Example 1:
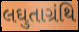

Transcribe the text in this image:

લઘુતાગ્રંથિ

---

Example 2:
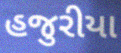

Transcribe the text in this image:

હજુરીયા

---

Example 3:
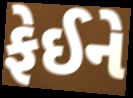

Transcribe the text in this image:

ફેઈને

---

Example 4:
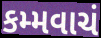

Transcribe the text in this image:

કમ્મવાચં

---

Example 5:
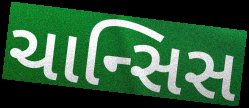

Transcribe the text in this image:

ચાન્સિસ